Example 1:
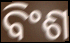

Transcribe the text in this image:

ବିଂଶ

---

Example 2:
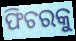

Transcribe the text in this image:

ଫିଚରକୁ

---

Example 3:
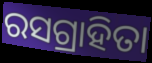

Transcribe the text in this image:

ରସଗ୍ରାହିତା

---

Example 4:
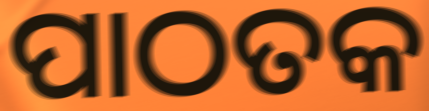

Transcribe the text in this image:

ପାଠତକ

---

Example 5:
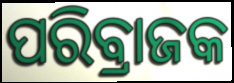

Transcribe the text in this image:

ପରିବ୍ରାଜକ